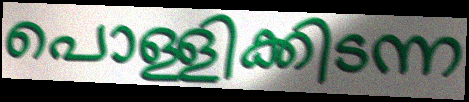
പൊള്ളിക്കിടന്ന